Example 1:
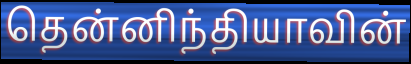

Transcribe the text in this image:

தென்னிந்தியாவின்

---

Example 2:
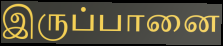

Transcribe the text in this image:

இருப்பானை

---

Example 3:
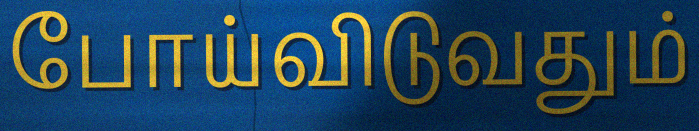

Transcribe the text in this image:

போய்விடுவதும்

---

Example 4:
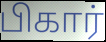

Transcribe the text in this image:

பிகார்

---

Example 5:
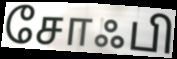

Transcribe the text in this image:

சோஃபி